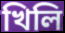
খিলি